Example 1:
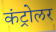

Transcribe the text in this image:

कंट्रोलर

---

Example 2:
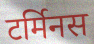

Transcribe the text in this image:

टर्मिनस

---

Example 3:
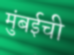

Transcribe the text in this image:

मुंबईची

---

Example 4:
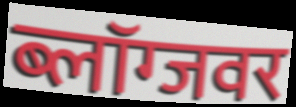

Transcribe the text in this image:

ब्लॉग्जवर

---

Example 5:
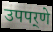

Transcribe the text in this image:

उपपर्णे